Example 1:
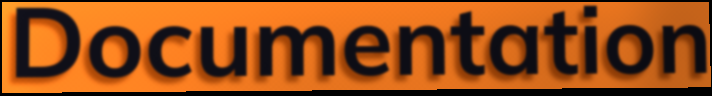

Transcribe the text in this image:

Documentation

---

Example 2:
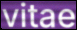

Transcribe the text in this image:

vitae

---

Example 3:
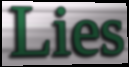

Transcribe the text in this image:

Lies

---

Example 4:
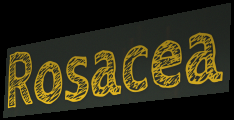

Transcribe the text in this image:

Rosacea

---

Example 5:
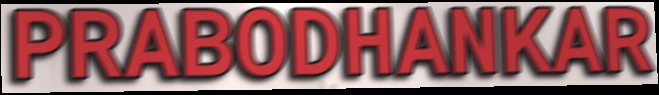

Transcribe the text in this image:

PRABODHANKAR